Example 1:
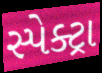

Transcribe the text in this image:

સ્પેક્ટ્રા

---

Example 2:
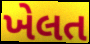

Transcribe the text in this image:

ખેલત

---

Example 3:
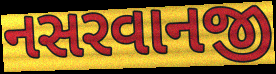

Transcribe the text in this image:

નસરવાનજી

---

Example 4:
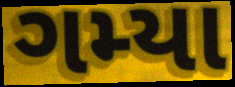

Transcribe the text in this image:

ગમ્યા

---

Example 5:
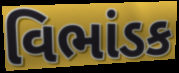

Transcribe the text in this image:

વિભાંડક